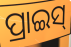
ପ୍ରାଇସ୍